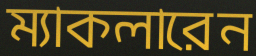
ম্যাকলারেন